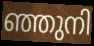
ഞ്ഞുനി